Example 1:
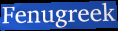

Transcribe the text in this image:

Fenugreek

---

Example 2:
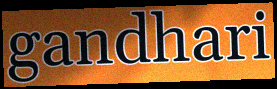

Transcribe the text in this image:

gandhari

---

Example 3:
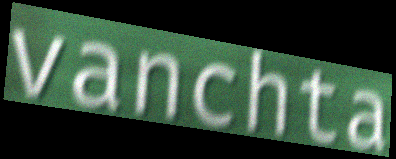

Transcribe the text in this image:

vanchta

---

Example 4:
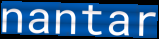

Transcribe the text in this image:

nantar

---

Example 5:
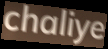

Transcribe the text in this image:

chaliye